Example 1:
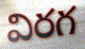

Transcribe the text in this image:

విరగ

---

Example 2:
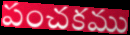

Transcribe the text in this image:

పంచకము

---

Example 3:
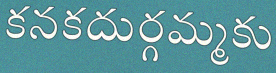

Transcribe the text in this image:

కనకదుర్గమ్మకు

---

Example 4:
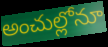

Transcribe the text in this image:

అంచుల్లోనూ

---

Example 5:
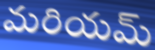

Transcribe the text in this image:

మరియమ్